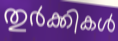
തുർക്കികൾ